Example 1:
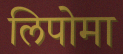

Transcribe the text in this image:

लिपोमा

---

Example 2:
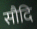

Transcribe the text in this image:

सौदि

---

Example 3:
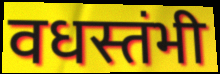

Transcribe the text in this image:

वधस्तंभी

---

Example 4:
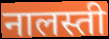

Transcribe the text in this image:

नालस्ती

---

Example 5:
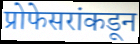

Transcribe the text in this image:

प्रोफेसरांकडून